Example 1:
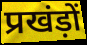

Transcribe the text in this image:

प्रखंड़ों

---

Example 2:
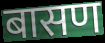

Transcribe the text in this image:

बासण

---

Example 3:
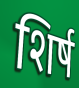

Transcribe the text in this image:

शिर्ष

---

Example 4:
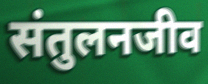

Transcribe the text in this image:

संतुलनजीव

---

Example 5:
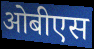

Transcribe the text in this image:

ओबीएस